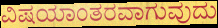
ವಿಷಯಾಂತರವಾಗುವುದು